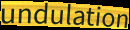
undulation